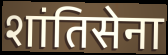
शांतिसेना